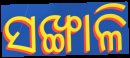
ସଙ୍ଖାଳି